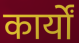
कार्यों